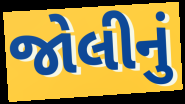
જોલીનું